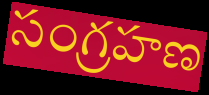
సంగ్రహణ